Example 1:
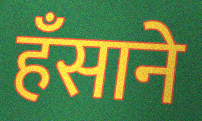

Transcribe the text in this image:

हँसाने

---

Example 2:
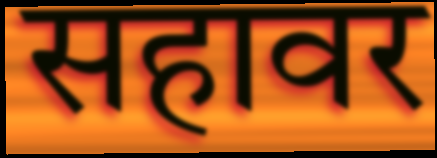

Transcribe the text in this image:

सहावर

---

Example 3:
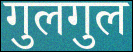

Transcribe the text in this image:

गुलगुल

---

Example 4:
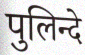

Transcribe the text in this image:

पुलिन्दे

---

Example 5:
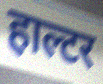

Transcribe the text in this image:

हाल्टर